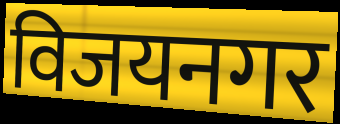
विजयनगर